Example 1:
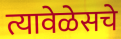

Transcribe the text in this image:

त्यावेळेसचे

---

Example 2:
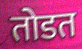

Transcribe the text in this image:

तोडत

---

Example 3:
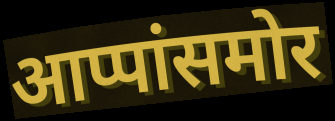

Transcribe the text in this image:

आप्पांसमोर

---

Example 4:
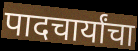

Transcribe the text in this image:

पादचार्यांचा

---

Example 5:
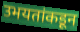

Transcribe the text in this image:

उभयतांकडून